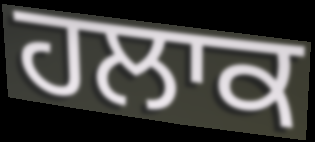
ਹਲਾਕ